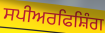
ਸਪੀਅਰਫਿਸ਼ਿੰਗ